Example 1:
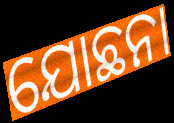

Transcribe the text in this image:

ଯୋଛନା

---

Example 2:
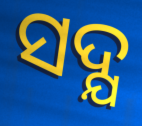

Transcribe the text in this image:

ସଦ୍ଯ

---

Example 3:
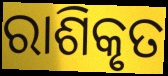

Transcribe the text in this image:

ରାଶିକୃତ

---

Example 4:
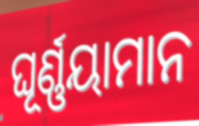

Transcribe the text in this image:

ଘୂର୍ଣ୍ଣୟାମାନ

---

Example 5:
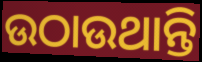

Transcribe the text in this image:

ଉଠାଉଥାନ୍ତି